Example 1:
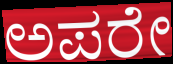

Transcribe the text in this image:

ಅಪರೇ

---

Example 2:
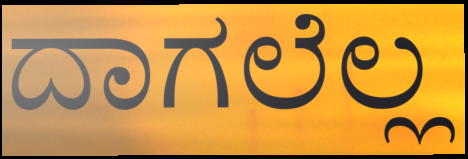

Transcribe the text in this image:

ದಾಗಲೆಲ್ಲ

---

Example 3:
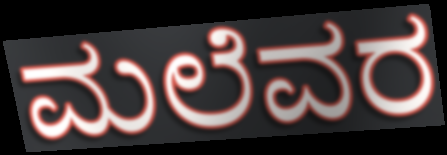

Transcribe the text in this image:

ಮಲೆವರ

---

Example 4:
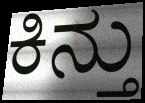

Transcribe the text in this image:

ಕಿನ್ತು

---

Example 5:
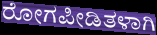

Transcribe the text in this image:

ರೋಗಪೀಡಿತಳಾಗಿ